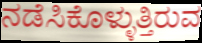
ನಡೆಸಿಕೊಳ್ಳುತ್ತಿರುವ